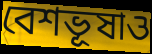
বেশভূষাও